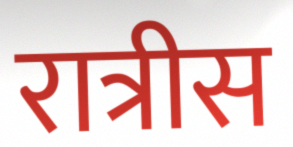
रात्रीस